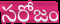
సరోజం